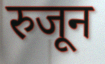
रुजून